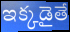
ఇక్కడైతే